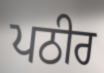
ਪਠੀਰ